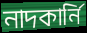
নাদকার্নি